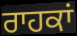
ਰਾਹਕਾਂ